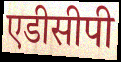
एडीसीपी